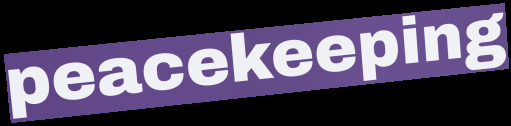
peacekeeping